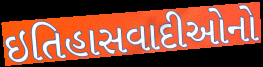
ઇતિહાસવાદીઓનો